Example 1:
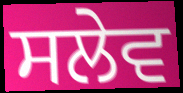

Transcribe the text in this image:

ਸਲੇਵ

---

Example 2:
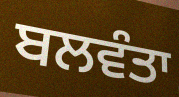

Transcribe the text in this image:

ਬਲਵੰਤਾ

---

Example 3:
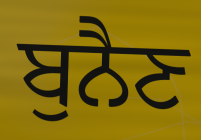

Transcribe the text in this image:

ਬੁਨੈਣ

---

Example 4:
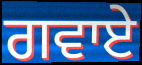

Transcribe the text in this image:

ਗਵਾਏ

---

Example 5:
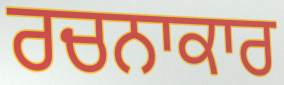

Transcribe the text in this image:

ਰਚਨਾਕਾਰ